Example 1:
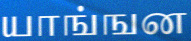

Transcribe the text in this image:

யாங்ஙன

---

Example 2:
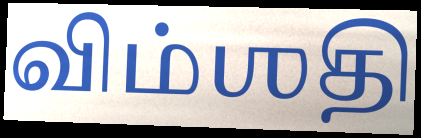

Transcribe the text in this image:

விம்ஶதி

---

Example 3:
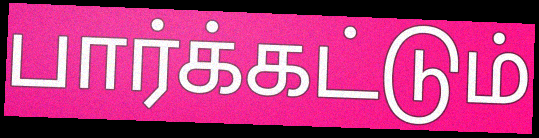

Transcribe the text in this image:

பார்க்கட்டும்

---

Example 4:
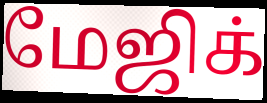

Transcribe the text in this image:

மேஜிக்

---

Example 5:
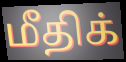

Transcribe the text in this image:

மீதிக்